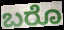
ಬರೊ